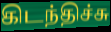
கிடந்திச்சு